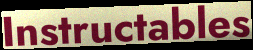
Instructables